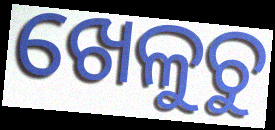
ଖେଳୁଚୁ